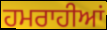
ਹਮਰਾਹੀਆਂ